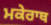
ਮਕੇਰਾਥ